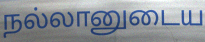
நல்லானுடைய